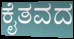
ಕೈತವದ